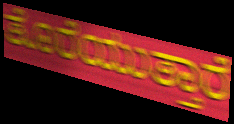
ತೊರೆಯುತ್ತಾರೆ